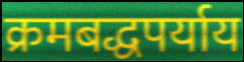
क्रमबद्धपर्याय